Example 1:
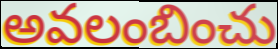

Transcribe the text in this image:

అవలంబించు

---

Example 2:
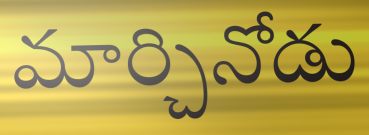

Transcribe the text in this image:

మార్చినోడు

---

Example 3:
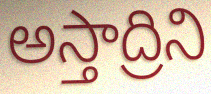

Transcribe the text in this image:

అస్తాద్రిని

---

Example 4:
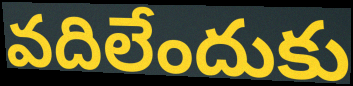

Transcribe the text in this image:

వదిలేందుకు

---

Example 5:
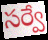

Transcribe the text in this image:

సర్వే